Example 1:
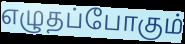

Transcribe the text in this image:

எழுதப்போகும்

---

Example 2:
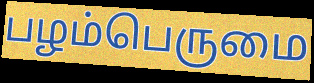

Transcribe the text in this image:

பழம்பெருமை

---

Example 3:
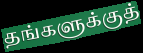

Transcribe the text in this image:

தங்களுக்குத்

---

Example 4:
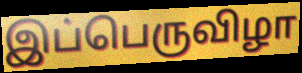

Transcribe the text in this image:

இப்பெருவிழா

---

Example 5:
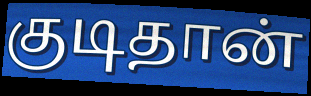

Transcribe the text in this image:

குடிதான்